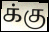
க்கு